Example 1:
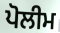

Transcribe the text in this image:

ਪੋਲੀਮ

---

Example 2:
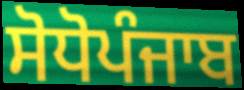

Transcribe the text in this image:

ਸੋਧੋਪੰਜਾਬ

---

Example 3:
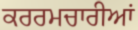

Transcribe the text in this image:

ਕਰਰਮਚਾਰੀਆਂ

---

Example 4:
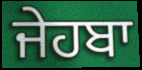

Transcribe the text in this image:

ਜੇਹਬਾ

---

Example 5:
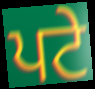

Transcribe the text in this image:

ਪਟੇ